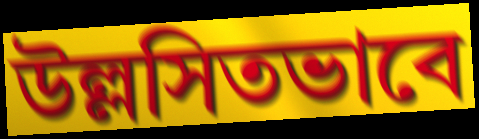
উল্লসিতভাবে